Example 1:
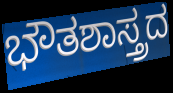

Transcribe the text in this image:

ಭೌತಶಾಸ್ತ್ರದ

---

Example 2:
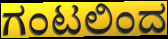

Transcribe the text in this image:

ಗಂಟಲಿಂದ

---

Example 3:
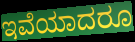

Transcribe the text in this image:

ಇವೆಯಾದರೂ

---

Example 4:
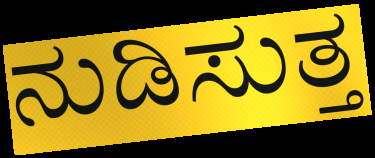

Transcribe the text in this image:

ನುಡಿಸುತ್ತ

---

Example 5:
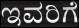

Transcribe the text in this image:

ಇವರಿಗೆ